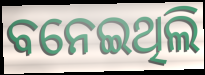
ବନେଇଥିଲି